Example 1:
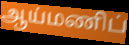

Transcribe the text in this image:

ஆய்மணிப்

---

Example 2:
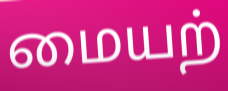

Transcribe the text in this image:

மையற்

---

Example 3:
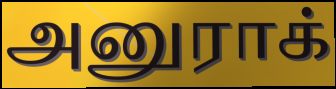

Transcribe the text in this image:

அனுராக்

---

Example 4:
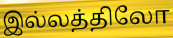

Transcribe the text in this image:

இல்லத்திலோ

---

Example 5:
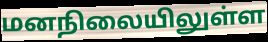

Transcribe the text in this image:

மனநிலையிலுள்ள